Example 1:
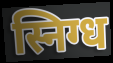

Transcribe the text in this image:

स्निग्ध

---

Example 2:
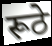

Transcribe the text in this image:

रूठे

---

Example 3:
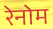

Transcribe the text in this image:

रेनोम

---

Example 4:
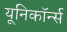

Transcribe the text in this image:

यूनिकॉर्न्स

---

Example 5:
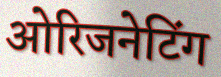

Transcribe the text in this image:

ओरिजनेटिंग